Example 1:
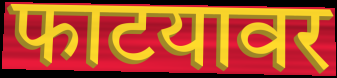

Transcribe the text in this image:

फाटयावर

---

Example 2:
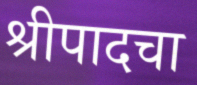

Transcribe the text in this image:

श्रीपादचा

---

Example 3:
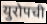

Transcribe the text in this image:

युरोपची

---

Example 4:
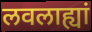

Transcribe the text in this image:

लवलाह्यां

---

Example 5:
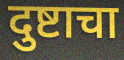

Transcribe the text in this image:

दुष्टाचा